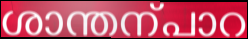
ശാന്തന്പാറ